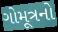
ગોમૂત્રનો